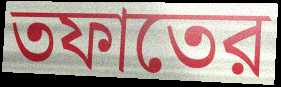
তফাতের